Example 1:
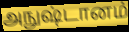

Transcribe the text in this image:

அநுஷ்டானம்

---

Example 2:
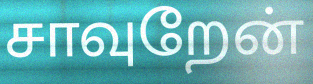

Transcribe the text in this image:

சாவுறேன்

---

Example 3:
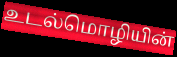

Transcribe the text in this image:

உடல்மொழியின்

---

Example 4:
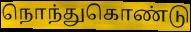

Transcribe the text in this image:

நொந்துகொண்டு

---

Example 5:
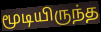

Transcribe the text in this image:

மூடியிருந்த